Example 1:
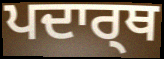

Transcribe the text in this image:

ਪਦਾਰ੍ਥ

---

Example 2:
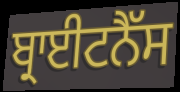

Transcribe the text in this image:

ਬ੍ਰਾਈਟਨੈੱਸ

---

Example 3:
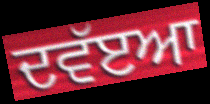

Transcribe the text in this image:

ਦਵੱੲਆ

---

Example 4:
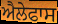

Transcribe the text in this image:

ਐਲੇਫਾਸ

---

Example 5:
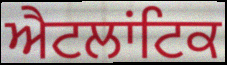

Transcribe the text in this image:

ਐਟਲਾਂਟਿਕ